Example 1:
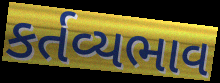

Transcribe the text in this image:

કર્તવ્યભાવ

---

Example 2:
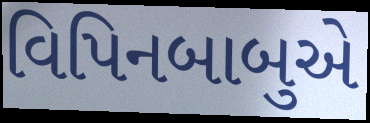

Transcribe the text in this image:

વિપિનબાબુએ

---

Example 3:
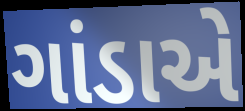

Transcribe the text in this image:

ગાંડાએ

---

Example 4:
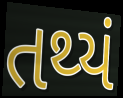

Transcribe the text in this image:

તથ્યં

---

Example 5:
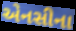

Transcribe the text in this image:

એનસીના